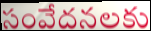
సంవేదనలకు